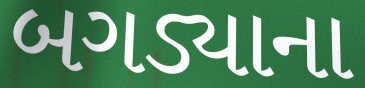
બગડ્યાના